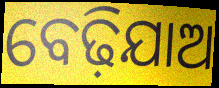
ବେଢ଼ିଯାଅ